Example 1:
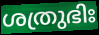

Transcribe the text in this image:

ശത്രുഭിഃ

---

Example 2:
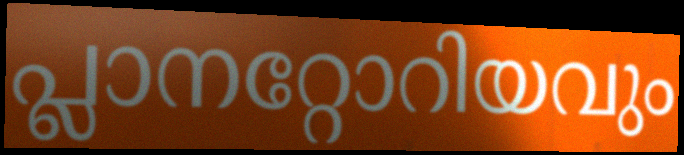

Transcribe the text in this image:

പ്ലാനറ്റോറിയവും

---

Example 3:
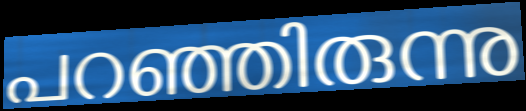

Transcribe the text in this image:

പറഞ്ഞിരുന്നു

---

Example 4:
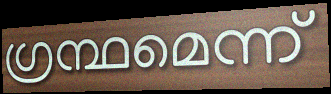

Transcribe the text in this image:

ഗ്രന്ഥമെന്ന്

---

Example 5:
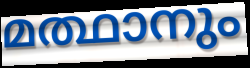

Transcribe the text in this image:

മത്ഥാനും